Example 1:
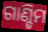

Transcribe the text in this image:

ଗାଣ୍ଡିମ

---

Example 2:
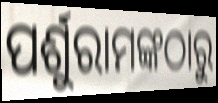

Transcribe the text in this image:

ପର୍ଶୁରାମଙ୍କଠାରୁ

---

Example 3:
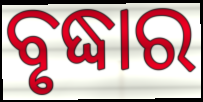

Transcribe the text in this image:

ବୃଦ୍ଧାର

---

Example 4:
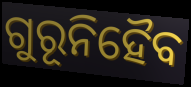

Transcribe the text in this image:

ଗୁରୂନିହୈବ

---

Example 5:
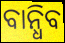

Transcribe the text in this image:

ବାନ୍ଧିବ